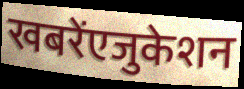
खबरेंएजुकेशन